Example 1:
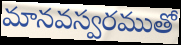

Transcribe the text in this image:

మానవస్వరముతో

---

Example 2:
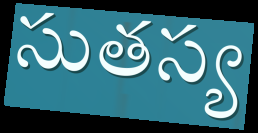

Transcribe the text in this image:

సుతస్య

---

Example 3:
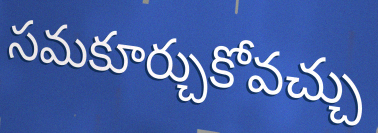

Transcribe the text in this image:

సమకూర్చుకోవచ్చు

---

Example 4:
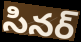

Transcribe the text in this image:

సినర్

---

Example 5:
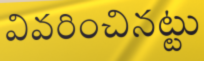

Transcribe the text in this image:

వివరించినట్టు